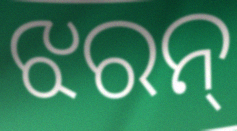
ଝରନ୍